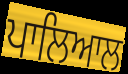
ਪਾਲਿਆਲ